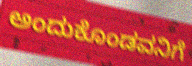
ಅಂದುಕೊಂಡವನಿಗೆ